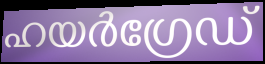
ഹയർഗ്രേഡ്